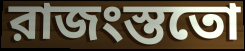
রাজংস্ততো